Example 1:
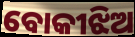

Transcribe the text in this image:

ବୋକୀଝିଅ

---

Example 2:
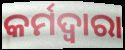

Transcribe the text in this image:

କର୍ମଦ୍ବାରା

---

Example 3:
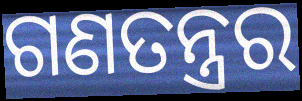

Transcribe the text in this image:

ଗଣତନ୍ତ୍ରର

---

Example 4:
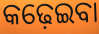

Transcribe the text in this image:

କଢ଼େଇବା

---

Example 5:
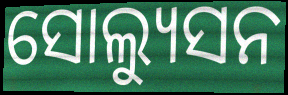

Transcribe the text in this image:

ସୋଲ୍ୟୁସନ